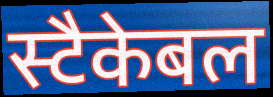
स्टैकेबल